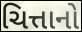
ચિત્તાનો